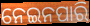
ନେଇନପାରି